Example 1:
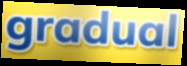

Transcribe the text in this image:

gradual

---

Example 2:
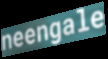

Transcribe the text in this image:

neengale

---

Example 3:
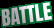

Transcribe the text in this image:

BATTLE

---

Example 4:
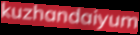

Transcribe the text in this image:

kuzhandaiyum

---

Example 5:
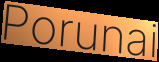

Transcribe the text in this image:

Porunai